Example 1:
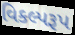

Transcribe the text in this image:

વિકલ્પરૂપ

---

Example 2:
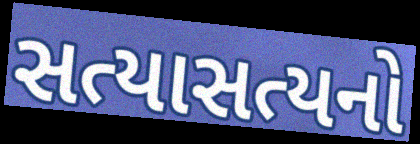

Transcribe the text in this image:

સત્યાસત્યનો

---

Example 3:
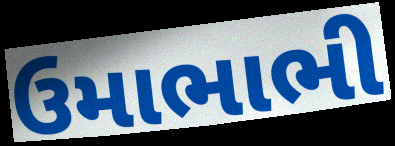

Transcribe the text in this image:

ઉમાભાભી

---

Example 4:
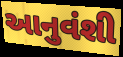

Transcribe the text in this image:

આનુવંશી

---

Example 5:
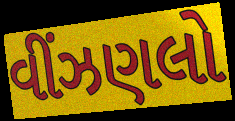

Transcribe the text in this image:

વીંઝણલો